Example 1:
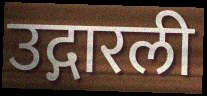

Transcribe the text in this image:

उद्गारली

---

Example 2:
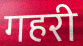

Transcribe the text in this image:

गहरी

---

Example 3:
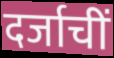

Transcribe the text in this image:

दर्जाचीं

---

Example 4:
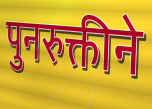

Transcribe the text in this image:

पुनरुक्तीने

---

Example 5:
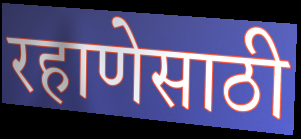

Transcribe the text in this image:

रहाणेसाठी